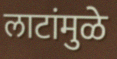
लाटांमुळे